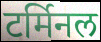
टर्मिनल